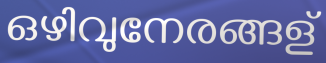
ഒഴിവുനേരങ്ങള്